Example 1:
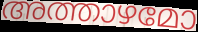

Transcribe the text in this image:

അത്താഴമോ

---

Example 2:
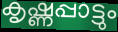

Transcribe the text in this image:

കൃഷ്ണപ്പാട്ടും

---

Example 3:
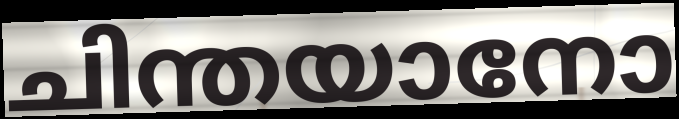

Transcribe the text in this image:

ചിന്തയാനോ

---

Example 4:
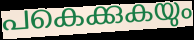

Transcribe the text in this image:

പകെക്കുകയും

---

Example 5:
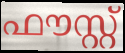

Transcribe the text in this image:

ഫൗസ്റ്റ്